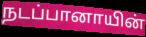
நடப்பானாயின்